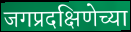
जगप्रदक्षिणेच्या